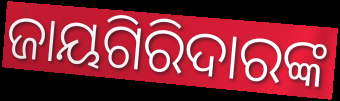
ଜାୟଗିରିଦାରଙ୍କ